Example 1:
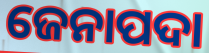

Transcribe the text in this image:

ଜେନାପଦା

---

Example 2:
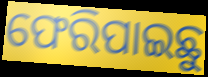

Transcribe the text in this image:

ଫେରିପାଇଛୁ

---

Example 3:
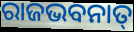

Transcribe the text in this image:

ରାଜଭବନାତ୍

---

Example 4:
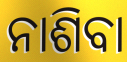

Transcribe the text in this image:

ନାଶିବା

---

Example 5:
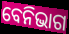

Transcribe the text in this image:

ବେନିଭାଗ